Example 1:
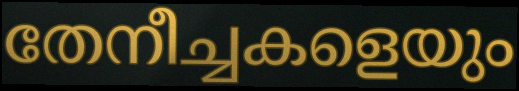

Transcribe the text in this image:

തേനീച്ചകളെയും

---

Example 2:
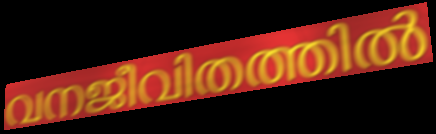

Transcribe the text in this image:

വനജീവിതത്തിൽ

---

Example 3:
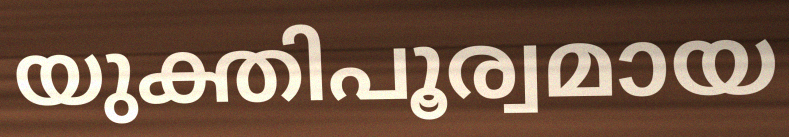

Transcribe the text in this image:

യുക്തിപൂര്വമായ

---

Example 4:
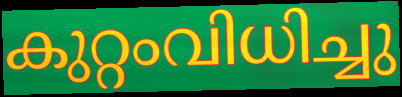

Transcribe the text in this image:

കുറ്റംവിധിച്ചു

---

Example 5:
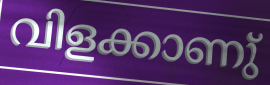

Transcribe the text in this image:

വിളക്കാണു്